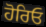
ਹੋਰਿਓ